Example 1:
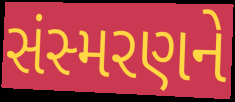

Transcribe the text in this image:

સંસ્મરણને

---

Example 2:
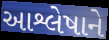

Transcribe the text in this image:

આશ્લેષાને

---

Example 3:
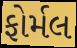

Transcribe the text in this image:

ફોર્મલ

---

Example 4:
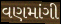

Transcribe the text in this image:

વણમાંગી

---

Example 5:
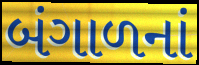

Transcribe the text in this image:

બંગાળનાં